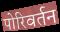
पोरिवर्तन